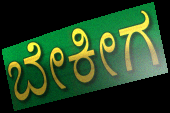
ಬೇಕೀಗ